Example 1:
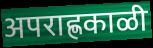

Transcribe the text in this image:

अपराह्णकाळी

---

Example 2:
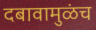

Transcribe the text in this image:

दबावामुळंच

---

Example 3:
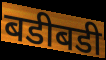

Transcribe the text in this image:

बडीबडी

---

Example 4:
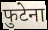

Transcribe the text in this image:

फुटेना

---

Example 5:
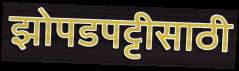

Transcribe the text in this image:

झोपडपट्टीसाठी